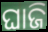
ଘାଜି